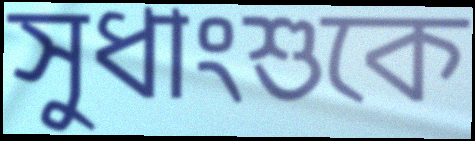
সুধাংশুকে